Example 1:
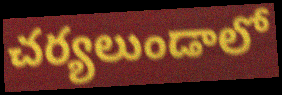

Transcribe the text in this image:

చర్యలుండాలో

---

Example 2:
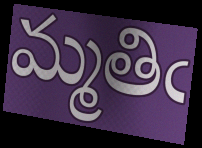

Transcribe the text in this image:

మ్మతిఁ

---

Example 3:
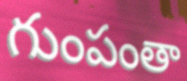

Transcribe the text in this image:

గుంపంతా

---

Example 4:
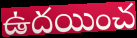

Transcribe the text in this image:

ఉదయించ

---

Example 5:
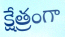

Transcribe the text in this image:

క్షేత్రంగా